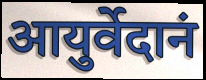
आयुर्वेदानं